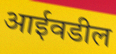
आईवडील